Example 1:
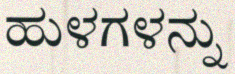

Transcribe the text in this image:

ಹುಳಗಳನ್ನು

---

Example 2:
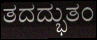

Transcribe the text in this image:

ತದದ್ಭುತಂ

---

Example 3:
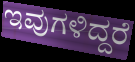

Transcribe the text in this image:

ಇವುಗಳಿದ್ದರೆ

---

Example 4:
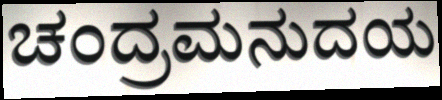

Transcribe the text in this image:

ಚಂದ್ರಮನುದಯ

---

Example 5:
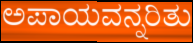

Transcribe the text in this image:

ಅಪಾಯವನ್ನರಿತು